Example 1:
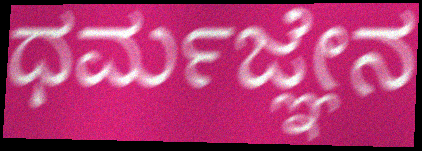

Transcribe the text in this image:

ಧರ್ಮಜ್ಞೇನ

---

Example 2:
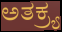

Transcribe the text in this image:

ಅತಕ್ರ್ಯ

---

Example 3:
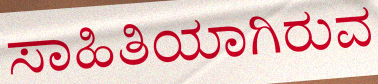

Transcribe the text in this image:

ಸಾಹಿತಿಯಾಗಿರುವ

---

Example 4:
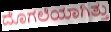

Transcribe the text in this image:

ದೊಗಲೆಯಾಗಿತ್ತು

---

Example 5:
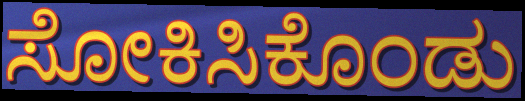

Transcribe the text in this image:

ಸೋಕಿಸಿಕೊಂಡು